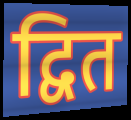
द्वित